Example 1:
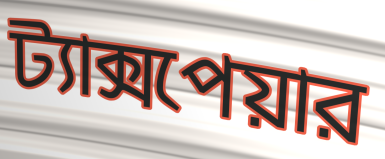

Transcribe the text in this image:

ট্যাক্সপেয়ার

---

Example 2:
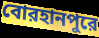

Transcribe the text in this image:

বোরহানপুরে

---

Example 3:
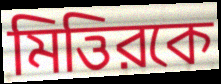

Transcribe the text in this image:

মিত্তিরকে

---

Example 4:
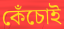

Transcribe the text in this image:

কেঁচোই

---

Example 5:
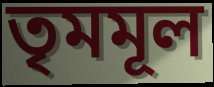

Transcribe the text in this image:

তৃমমূল